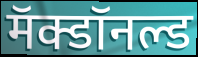
मॅक्डॉनल्ड